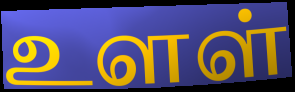
உளள்